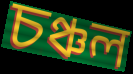
চঞ্চল